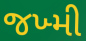
જખ્મી